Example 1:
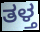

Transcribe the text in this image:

ತಳ್ತ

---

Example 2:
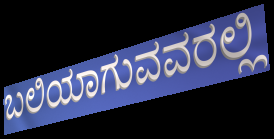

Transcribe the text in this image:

ಬಲಿಯಾಗುವವರಲ್ಲಿ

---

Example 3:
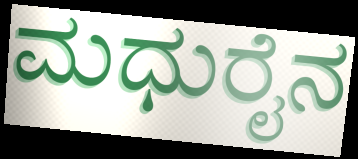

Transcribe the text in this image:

ಮಧುರೈನ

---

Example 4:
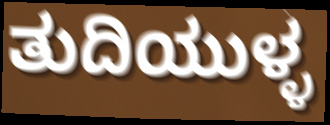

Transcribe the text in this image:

ತುದಿಯುಳ್ಳ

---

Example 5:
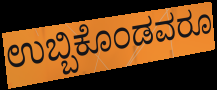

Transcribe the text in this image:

ಉಬ್ಬಿಕೊಂಡವರೂ